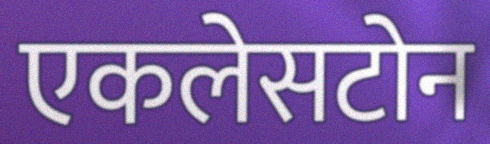
एकलेसटोन